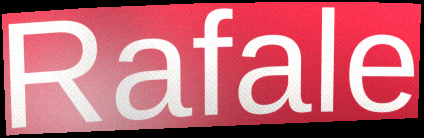
Rafale